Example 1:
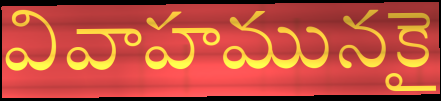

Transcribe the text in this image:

వివాహమునకై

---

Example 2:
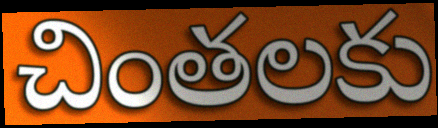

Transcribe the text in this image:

చింతలకు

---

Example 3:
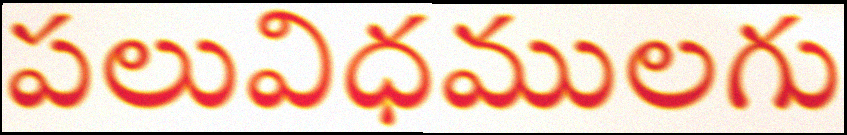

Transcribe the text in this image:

పలువిధములగు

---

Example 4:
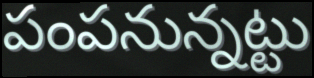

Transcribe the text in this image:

పంపనున్నట్టు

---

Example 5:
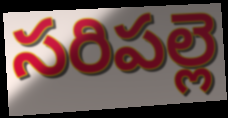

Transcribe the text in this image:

సరిపల్లె